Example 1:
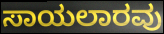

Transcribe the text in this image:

ಸಾಯಲಾರವು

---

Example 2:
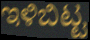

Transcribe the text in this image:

ಇಳಿಬಿಟ್ಟ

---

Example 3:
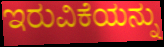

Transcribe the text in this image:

ಇರುವಿಕೆಯನ್ನು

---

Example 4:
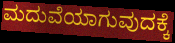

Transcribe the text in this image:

ಮದುವೆಯಾಗುವುದಕ್ಕೆ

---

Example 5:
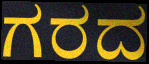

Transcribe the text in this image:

ಗರದ